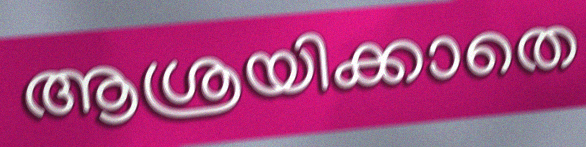
ആശ്രയിക്കാതെ